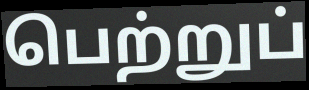
பெற்றுப்